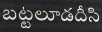
బట్టలూడదీసి